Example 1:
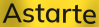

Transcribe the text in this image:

Astarte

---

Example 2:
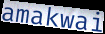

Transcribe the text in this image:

amakwai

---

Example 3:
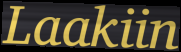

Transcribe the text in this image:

Laakiin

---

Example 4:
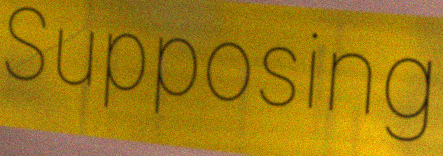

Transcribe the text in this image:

Supposing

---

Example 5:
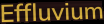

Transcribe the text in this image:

Effluvium